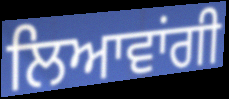
ਲਿਆਵਾਂਗੀ